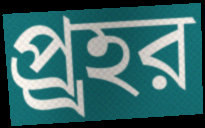
প্র্রহর